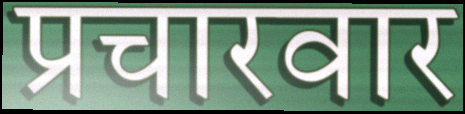
प्रचारवार